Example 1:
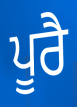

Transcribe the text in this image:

ਪੂਰੈ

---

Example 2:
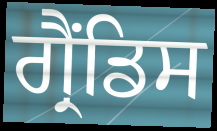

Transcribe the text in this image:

ਗ੍ਰੈਂਡਿਸ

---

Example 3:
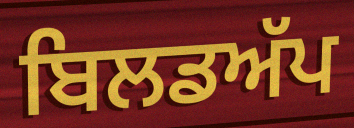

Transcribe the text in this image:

ਬਿਲਡਅੱਪ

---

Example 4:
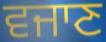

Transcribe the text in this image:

ਵਜਾਣ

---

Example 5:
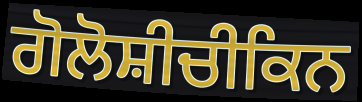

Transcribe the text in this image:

ਗੋਲੋਸ਼ੀਚੀਕਿਨ